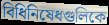
বিধিনিষেধগুলিকে